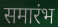
समारंभ